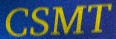
CSMT